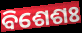
ବିଶେଶଃ